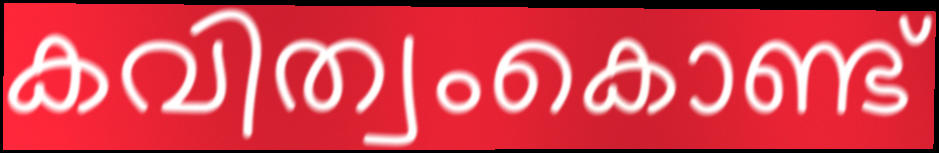
കവിത്വംകൊണ്ട്